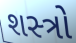
શસ્‍ત્રો